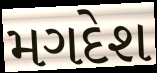
મગદેશ